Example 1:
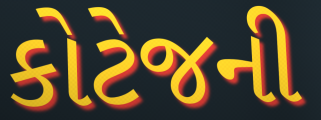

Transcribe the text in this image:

કોટેજની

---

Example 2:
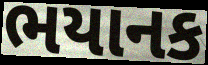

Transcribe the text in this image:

ભયાનક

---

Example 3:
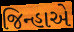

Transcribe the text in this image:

જિન્હાએ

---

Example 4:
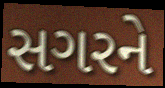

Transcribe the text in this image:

સગરને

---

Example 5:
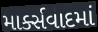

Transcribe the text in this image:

માર્ક્સવાદમાં